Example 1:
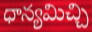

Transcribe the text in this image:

ధాన్యమిచ్చి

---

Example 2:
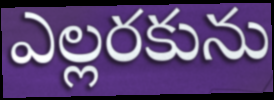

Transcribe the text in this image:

ఎల్లరకును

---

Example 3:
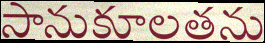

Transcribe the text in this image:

సానుకూలతను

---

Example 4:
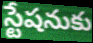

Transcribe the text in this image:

స్టేషనుకు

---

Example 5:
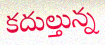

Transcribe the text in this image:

కదుల్తున్న